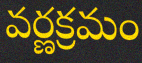
వర్ణక్రమం